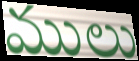
ములు